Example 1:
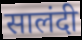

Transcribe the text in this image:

सालंदी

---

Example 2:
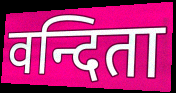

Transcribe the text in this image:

वन्दिता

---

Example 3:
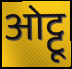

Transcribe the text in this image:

ओट्टू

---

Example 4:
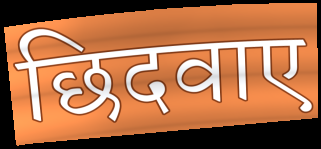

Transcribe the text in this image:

छिदवाए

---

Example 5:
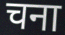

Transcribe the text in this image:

चना